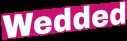
Wedded